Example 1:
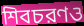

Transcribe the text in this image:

শিবচরণও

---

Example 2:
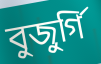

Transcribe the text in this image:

বুজুর্গি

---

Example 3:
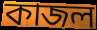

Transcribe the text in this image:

কাজল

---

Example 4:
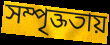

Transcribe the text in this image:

সম্পৃক্ততায়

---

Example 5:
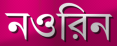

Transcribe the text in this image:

নওরিন